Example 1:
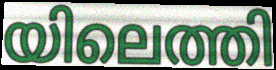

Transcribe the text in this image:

യിലെത്തി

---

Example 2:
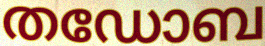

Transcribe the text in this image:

തഡോബ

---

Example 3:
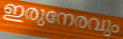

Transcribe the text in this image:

ഇരുനേരവും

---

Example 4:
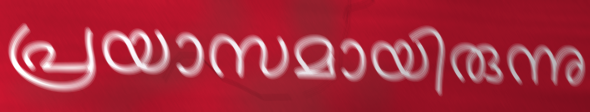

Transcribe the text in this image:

പ്രയാസമായിരുന്നു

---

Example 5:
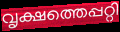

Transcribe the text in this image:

വൃക്ഷത്തെപ്പറ്റി